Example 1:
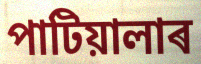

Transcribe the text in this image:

পাটিয়ালাৰ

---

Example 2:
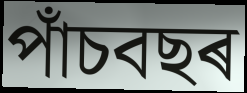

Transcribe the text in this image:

পাঁচবছৰ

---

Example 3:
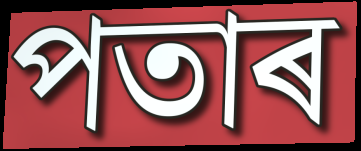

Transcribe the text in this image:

পতাৰ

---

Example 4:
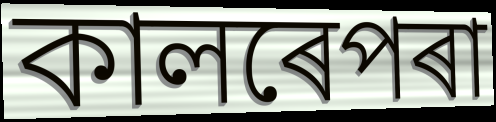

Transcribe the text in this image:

কালৰেপৰা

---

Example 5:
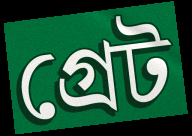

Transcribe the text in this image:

গ্ৰেট